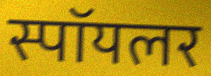
स्पॉयलर